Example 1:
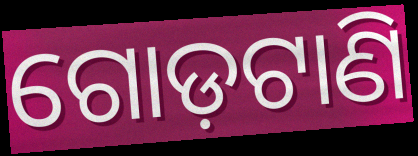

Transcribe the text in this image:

ଗୋଡ଼ଟାଣି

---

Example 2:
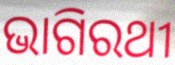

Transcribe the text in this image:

ଭାଗିରଥୀ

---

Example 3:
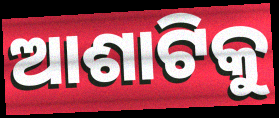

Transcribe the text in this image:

ଆଶାଟିକୁ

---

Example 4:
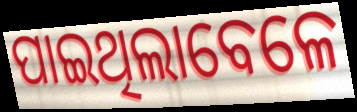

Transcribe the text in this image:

ପାଇଥିଲାବେଳେ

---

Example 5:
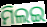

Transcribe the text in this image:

ମିଲଇ